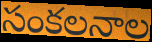
సంకలనాల